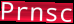
Prnsc